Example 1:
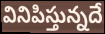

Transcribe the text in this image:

వినిపిస్తున్నదే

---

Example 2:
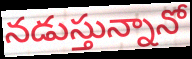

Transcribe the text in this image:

నడుస్తున్నానో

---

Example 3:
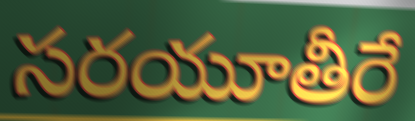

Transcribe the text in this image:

సరయూతీరే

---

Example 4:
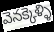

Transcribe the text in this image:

వెనక్కెళ్ళి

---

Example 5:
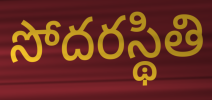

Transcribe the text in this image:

సోదరస్థితి